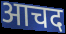
आचद